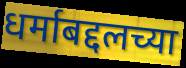
धर्माबद्दलच्या